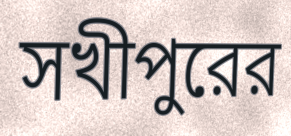
সখীপুরের